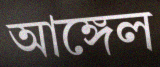
আঙ্গেল